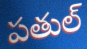
పతుల్